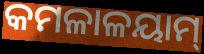
କମଳାଳୟାମ୍